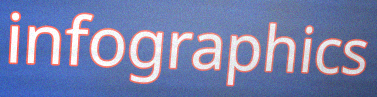
infographics